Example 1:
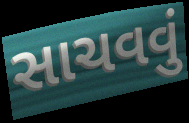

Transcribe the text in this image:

સાચવવું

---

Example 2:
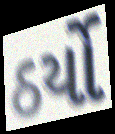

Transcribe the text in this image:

ઠર્યો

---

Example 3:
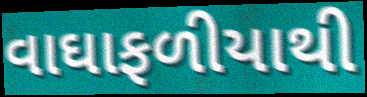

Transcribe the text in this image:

વાઘાફળીયાથી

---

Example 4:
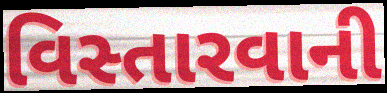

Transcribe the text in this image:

વિસ્તારવાની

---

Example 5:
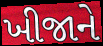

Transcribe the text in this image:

ખીજાને